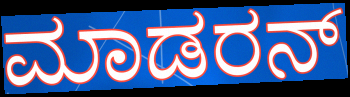
ಮಾಡರನ್